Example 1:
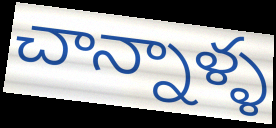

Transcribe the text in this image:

చాన్నాళ్ళ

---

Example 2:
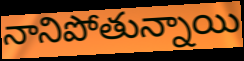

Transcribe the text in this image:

నానిపోతున్నాయి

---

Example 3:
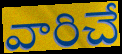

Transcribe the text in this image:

వారిచే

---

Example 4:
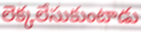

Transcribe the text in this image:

లెక్కలేసుకుంటాడు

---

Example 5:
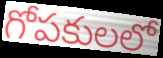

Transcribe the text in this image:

గోపకులలో